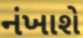
નંખાશે